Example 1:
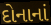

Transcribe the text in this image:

દોનાનાં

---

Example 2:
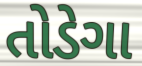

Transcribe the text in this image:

તોડેગા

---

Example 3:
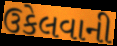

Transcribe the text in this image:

ઉકેલવાની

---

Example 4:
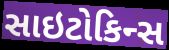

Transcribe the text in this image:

સાઇટોકિન્સ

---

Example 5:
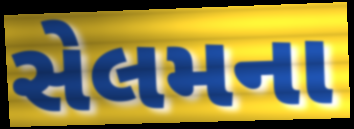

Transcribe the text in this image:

સેલમના